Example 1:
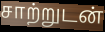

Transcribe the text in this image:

சாற்றுடன்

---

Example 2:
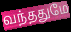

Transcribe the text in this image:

வந்ததுமே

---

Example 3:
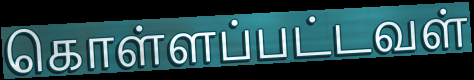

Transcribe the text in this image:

கொள்ளப்பட்டவள்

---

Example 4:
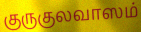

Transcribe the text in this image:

குருகுலவாஸம்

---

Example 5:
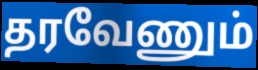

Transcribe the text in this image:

தரவேணும்